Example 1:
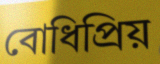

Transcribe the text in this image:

বোধিপ্রিয়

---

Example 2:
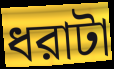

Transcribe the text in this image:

ধরাটা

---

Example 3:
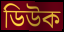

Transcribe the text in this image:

ডিউক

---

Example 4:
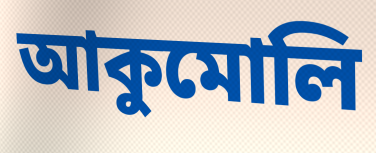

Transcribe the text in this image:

আকুমোলি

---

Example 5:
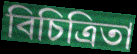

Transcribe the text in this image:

বিচিত্রিতা